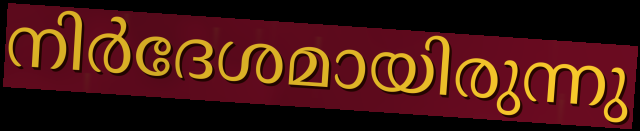
നിർദേശമായിരുന്നു